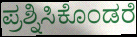
ಪ್ರಶ್ನಿಸಿಕೊಂಡರೆ